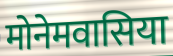
मोनेमवासिया